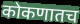
कोकणातच